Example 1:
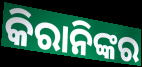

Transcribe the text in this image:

କିରାନିଙ୍କର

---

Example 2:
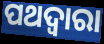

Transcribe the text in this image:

ପଥଦ୍ଵାରା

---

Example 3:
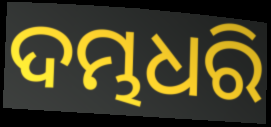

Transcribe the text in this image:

ଦମ୍ଭଧରି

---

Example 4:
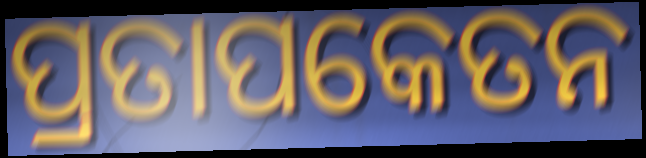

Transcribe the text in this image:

ପ୍ରତାପକେତନ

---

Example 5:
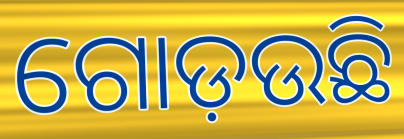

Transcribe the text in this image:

ଗୋଡ଼ଉଛି